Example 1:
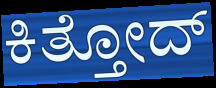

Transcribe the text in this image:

ಕಿತ್ತೋದ್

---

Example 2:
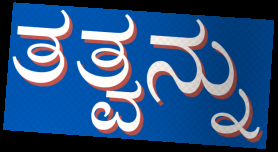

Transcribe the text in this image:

ತತ್ವನ್ನು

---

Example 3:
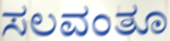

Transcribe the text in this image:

ಸಲವಂತೂ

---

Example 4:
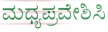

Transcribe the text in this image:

ಮಧ್ಯಪ್ರವೇಶಿಸಿ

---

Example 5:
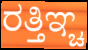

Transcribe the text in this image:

ರತ್ತಿಞ್ಚ